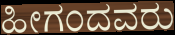
ಹೀಗಂದವರು